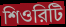
শিওরিটি